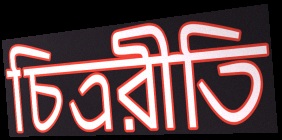
চিত্ররীতি